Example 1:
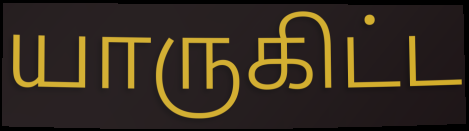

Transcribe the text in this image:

யாருகிட்ட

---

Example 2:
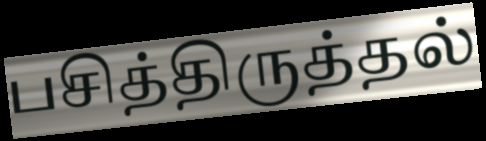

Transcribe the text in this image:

பசித்திருத்தல்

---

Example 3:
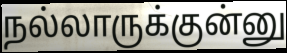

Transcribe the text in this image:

நல்லாருக்குன்னு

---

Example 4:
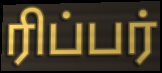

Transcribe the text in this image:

ரிப்பர்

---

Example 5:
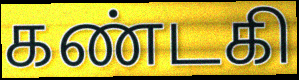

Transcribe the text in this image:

கண்டகி